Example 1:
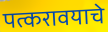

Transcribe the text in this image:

पत्करावयाचे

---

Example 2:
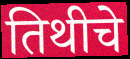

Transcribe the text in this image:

तिथीचे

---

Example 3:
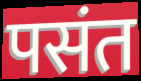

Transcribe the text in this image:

पसंत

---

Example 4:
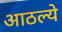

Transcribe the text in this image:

आठल्ये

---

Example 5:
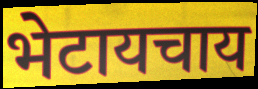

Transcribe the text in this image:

भेटायचाय